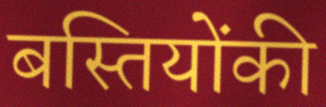
बस्तियोंकी